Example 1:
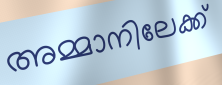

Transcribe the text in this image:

അമ്മാനിലേക്ക്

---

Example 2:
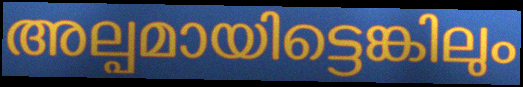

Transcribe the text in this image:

അല്പമായിട്ടെങ്കിലും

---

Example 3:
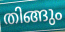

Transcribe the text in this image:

തിങ്ങും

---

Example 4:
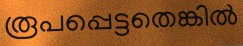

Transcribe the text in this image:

രൂപപ്പെട്ടതെങ്കിൽ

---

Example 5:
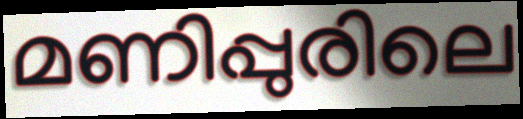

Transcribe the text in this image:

മണിപ്പുരിലെ